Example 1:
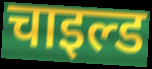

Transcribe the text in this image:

चाइल्ड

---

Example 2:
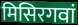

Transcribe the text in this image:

मिसिरगवां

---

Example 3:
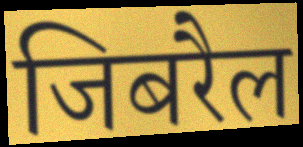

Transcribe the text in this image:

जिबरैल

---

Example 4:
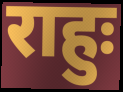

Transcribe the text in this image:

राहुः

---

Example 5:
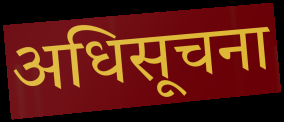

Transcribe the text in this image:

अधिसूचना